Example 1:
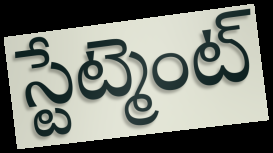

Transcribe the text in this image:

స్టేట్మెంట్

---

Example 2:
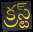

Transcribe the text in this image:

క్రస్ట్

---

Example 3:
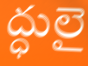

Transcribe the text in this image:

ద్ధులై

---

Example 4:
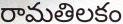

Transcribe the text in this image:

రామతిలకం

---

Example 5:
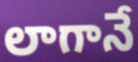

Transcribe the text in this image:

లాగానే